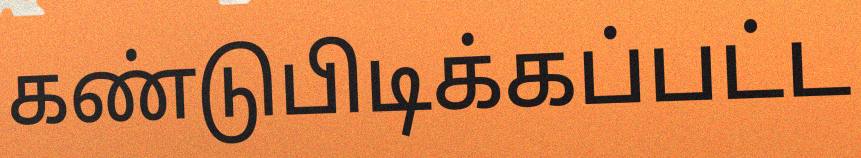
கண்டுபிடிக்கப்பட்ட